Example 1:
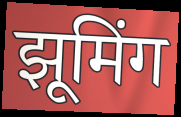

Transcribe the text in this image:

झूमिंग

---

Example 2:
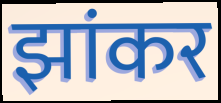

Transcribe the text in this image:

झांकर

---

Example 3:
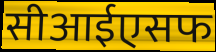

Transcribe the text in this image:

सीआईएसफ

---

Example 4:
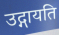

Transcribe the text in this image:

उद्गायति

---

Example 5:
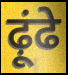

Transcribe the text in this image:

ढ़ूंढे